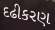
દઢીકરણ